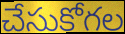
చేసుకోగల